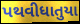
પથવીધાતુયા